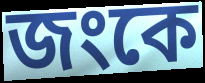
জংকে